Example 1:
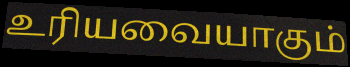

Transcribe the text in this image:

உரியவையாகும்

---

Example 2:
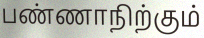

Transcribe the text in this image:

பண்ணாநிற்கும்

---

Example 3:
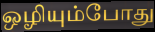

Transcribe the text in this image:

ஒழியும்போது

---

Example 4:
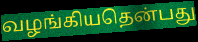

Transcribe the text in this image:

வழங்கியதென்பது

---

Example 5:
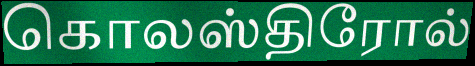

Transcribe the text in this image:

கொலஸ்திரோல்